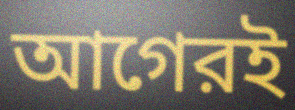
আগেরই